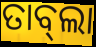
ତାବ୍‌ଲା